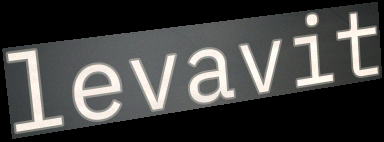
levavit